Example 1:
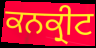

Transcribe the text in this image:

ਕਨਕ੍ਰੀਟ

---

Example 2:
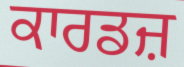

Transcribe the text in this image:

ਕਾਰਡਜ਼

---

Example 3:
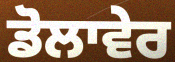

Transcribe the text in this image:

ਡੋਲਾਵੇਰ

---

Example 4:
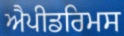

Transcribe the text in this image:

ਐਪੀਡਰਿਮਸ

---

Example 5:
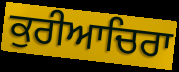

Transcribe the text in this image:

ਕੁਰੀਆਚਿਰਾ